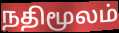
நதிமூலம்